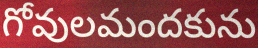
గోవులమందకును